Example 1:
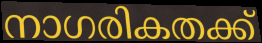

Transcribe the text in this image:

നാഗരികതക്ക്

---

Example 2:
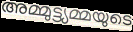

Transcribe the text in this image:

അമ്മുട്ട്യമ്മയുടെ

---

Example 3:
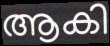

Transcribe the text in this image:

ആകി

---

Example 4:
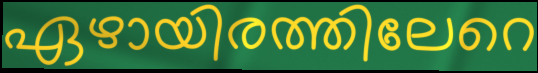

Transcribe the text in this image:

ഏഴായിരത്തിലേറെ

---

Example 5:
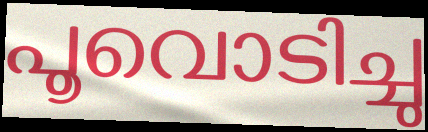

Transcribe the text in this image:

പൂവൊടിച്ചു